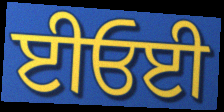
ਈਓਈ